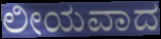
ಲೀಯವಾದ